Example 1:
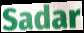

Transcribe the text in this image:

Sadar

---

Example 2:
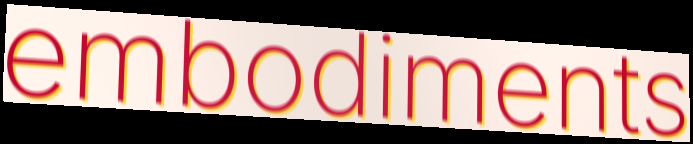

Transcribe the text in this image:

embodiments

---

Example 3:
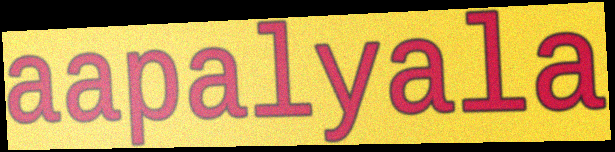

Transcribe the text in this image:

aapalyala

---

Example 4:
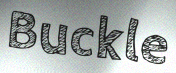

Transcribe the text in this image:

Buckle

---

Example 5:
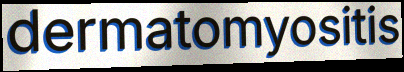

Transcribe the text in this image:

dermatomyositis